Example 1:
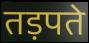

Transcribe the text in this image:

तड़पते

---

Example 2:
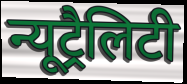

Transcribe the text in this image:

न्यूट्रैलिटी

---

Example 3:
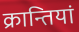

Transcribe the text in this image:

क्रान्तियां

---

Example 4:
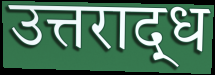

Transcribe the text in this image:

उत्तराद्ध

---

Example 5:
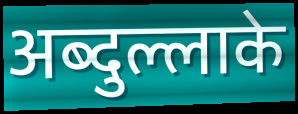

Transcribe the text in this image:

अब्दुल्लाके